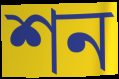
শন